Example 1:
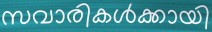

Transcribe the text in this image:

സവാരികൾക്കായി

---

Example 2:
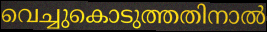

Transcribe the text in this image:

വെച്ചുകൊടുത്തതിനാൽ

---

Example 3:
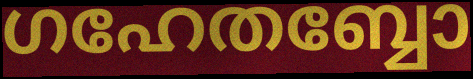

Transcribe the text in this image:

ഗഹേതബ്ബോ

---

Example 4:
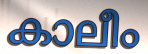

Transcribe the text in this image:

കാലീം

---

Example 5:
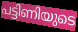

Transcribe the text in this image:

പട്ടിണിയുടെ